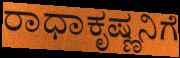
ರಾಧಾಕೃಷ್ಣನಿಗೆ